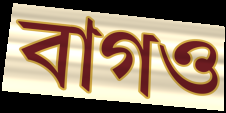
বাগও